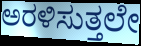
ಅರಳಿಸುತ್ತಲೇ